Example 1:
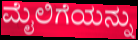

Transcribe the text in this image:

ಮೈಲಿಗೆಯನ್ನು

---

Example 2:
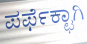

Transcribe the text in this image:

ಪರ್ಫೆಕ್ಟಾಗಿ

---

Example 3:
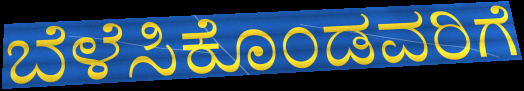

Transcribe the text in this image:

ಬೆಳೆಸಿಕೊಂಡವರಿಗೆ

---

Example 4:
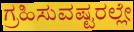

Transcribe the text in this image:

ಗ್ರಹಿಸುವಷ್ಟರಲ್ಲೇ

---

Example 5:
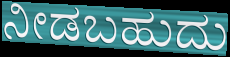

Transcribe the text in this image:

ನೀಡಬಹುದು